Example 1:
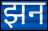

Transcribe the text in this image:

झन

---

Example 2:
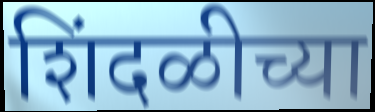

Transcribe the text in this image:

शिंदळीच्या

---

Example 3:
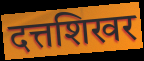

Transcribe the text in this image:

दत्तशिखर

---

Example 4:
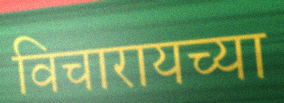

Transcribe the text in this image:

विचारायच्या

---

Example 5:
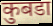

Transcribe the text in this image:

कुबडा